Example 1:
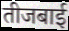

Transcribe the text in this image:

तीजबाई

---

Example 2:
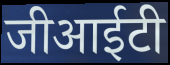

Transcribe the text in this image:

जीआईटी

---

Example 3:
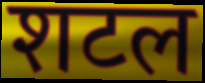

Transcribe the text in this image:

शटल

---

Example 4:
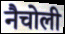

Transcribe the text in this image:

नैचोली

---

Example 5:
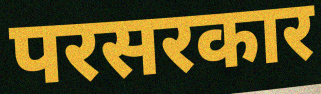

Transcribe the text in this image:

परसरकार